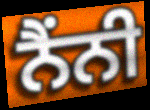
ਨੈਂਨੀ